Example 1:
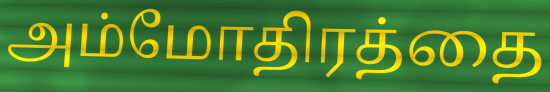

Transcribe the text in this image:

அம்மோதிரத்தை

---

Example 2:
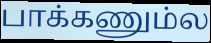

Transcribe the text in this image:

பாக்கணும்ல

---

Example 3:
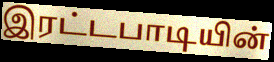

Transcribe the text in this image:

இரட்டபாடியின்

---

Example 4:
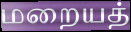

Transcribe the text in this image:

மறையத்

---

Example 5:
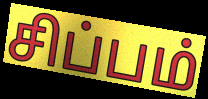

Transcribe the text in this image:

சிப்பம்